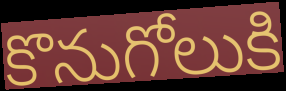
కొనుగోలుకి